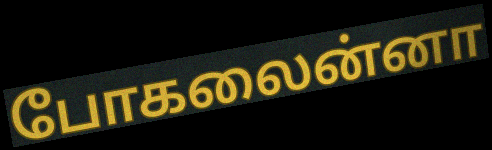
போகலைன்னா